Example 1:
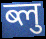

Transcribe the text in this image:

ब्लु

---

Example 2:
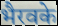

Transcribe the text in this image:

भैरवके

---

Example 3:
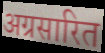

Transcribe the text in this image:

अग्रसारित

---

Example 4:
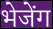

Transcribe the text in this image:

भेजेंग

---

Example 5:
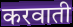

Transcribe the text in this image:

करवाती